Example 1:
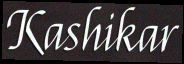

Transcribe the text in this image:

Kashikar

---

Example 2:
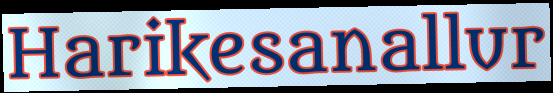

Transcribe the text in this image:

Harikesanallur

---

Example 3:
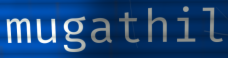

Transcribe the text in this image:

mugathil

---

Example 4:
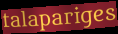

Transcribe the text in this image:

talapariges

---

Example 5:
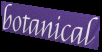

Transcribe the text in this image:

botanical